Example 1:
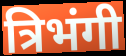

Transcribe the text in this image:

त्रिभंगी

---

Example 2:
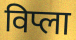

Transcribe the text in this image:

विप्ला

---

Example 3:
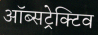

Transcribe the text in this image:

ऑब्सट्रेक्टिव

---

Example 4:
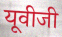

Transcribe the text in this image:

यूवीजी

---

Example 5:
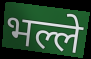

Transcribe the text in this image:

भल्ले